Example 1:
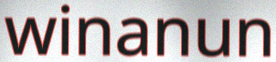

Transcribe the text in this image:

winanun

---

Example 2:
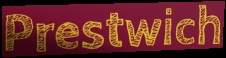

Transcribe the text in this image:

Prestwich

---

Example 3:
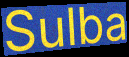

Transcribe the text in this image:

Sulba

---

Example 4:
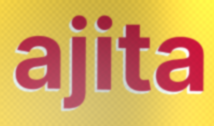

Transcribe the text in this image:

ajita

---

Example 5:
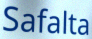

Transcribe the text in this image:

Safalta